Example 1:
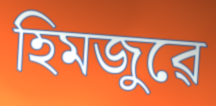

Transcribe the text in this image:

হিমজুৱে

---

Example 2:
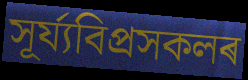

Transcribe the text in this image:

সূৰ্য্যবিপ্ৰসকলৰ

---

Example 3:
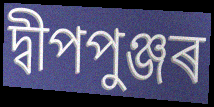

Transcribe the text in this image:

দ্বীপপুঞ্জৰ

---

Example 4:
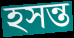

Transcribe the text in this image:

হসন্ত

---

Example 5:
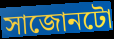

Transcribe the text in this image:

সাজোনটো